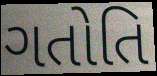
ગતોતિ